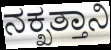
ನಕ್ಖತ್ತಾನಿ